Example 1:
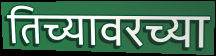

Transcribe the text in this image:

तिच्यावरच्या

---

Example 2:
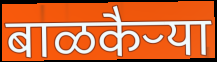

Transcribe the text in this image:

बाळकैऱ्या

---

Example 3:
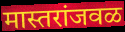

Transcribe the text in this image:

मास्तरांजवळ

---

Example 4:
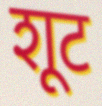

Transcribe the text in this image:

शूट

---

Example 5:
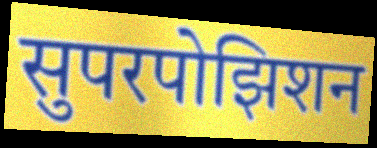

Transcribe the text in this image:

सुपरपोझिशन